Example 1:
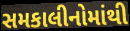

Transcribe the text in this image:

સમકાલીનોમાંથી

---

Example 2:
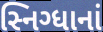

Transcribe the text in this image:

સ્નિગ્ધાનાં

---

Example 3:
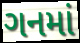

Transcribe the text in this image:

ગનમાં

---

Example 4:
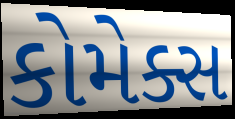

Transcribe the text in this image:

કોમેક્સ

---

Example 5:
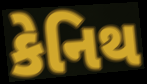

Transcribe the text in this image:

કેનિથ